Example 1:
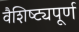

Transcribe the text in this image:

वैशिष्‍ट्यपूर्ण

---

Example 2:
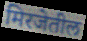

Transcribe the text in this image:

मिरजेतील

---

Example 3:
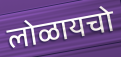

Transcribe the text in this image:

लोळायचो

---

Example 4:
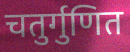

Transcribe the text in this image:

चतुर्गुणित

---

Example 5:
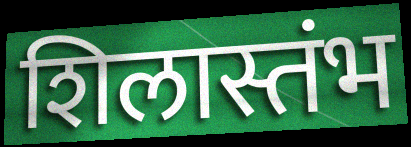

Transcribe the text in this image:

शिलास्तंभ